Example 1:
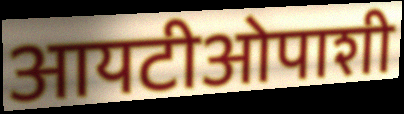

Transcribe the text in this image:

आयटीओपाशी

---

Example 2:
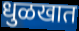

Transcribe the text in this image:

धुळखात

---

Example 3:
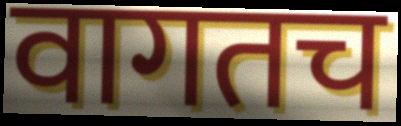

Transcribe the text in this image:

वागतच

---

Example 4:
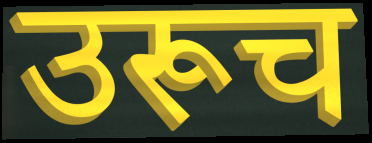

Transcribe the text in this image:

उरूच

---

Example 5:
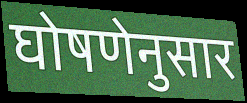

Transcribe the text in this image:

घोषणेनुसार